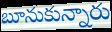
బూనుకున్నారు